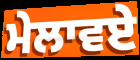
ਮੇਲਾਵਏ